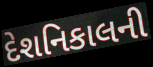
દેશનિકાલની